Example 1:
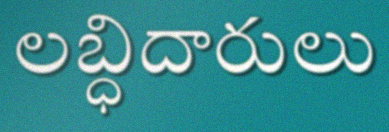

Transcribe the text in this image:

లబ్ధిదారులు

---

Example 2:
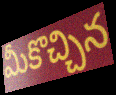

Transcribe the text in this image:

మీకొచ్చిన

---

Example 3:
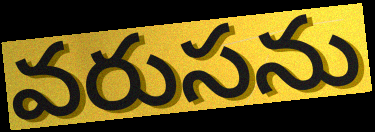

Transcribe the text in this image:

వరుసను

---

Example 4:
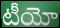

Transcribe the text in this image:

టీయో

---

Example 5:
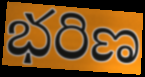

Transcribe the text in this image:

భరిణ